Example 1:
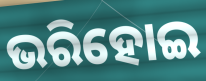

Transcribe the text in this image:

ଭରିହୋଇ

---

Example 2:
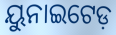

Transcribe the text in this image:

ୟୁନାଇଟେଡ଼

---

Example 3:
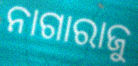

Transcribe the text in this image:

ନାଗାରାଜୁ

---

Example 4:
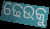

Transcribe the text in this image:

ଢେଉକୁ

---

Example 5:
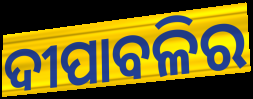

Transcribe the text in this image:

ଦୀପାବଳିର